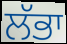
ਲੱਭਾ